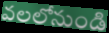
వలలోనుండి